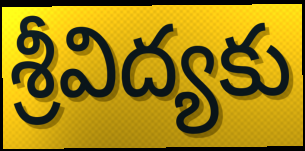
శ్రీవిద్యకు